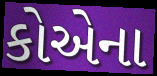
કોએના